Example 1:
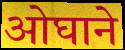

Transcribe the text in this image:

ओघाने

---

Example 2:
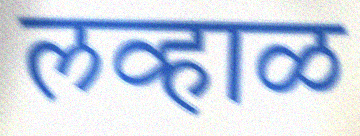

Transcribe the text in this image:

लव्हाळ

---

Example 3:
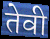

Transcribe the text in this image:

तेवी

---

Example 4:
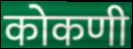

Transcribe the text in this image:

कोकणी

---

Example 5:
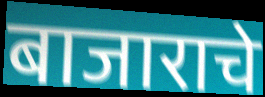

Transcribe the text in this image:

बाजाराचे